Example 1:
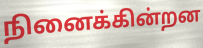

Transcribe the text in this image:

நினைக்கின்றன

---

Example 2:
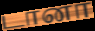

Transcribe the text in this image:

டானா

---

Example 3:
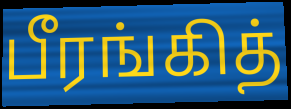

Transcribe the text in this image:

பீரங்கித்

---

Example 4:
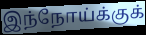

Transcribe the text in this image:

இந்நோய்க்குக்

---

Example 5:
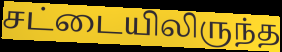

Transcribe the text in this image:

சட்டையிலிருந்த